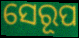
ସେରୂପ